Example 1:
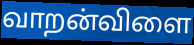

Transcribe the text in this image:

வாறன்விளை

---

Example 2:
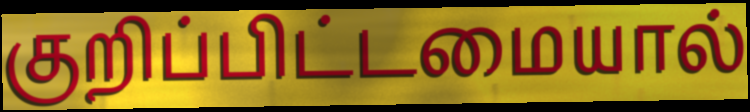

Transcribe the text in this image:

குறிப்பிட்டமையால்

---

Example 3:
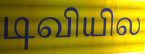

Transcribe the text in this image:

டிவியில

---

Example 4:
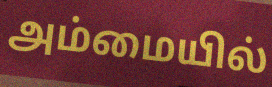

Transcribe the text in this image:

அம்மையில்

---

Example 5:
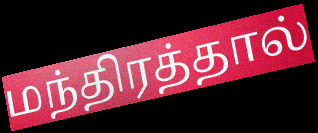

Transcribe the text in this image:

மந்திரத்தால்